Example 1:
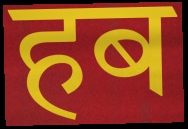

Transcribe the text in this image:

हब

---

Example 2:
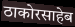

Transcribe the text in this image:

ठाकोरसाहेब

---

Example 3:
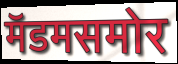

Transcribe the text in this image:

मॅडमसमोर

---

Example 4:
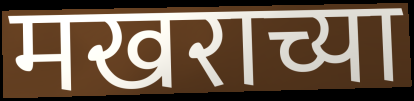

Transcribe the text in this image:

मखराच्या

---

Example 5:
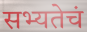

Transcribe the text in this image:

सभ्यतेचं